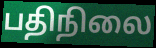
பதிநிலை